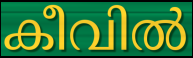
കീവിൽ